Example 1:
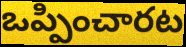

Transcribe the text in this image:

ఒప్పించారట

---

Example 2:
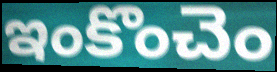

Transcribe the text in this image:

ఇంకొంచెం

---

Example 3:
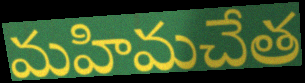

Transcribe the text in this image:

మహిమచేత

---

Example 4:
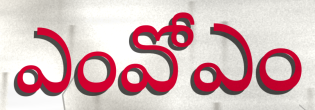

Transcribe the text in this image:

ఎంవోఎం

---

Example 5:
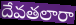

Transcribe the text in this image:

దేవతలారా